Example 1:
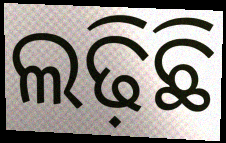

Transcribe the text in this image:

ଲଢ଼ିଛି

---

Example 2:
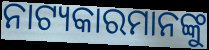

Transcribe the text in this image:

ନାଟ୍ଯକାରମାନଙ୍କୁ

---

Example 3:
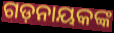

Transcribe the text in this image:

ଗଡ଼ନାୟକଙ୍କ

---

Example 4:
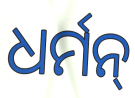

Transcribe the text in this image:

ଧର୍ମନ୍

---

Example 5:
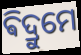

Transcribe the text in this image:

ଵିଦ୍ରୁମେ